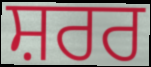
ਸ਼ਰਰ